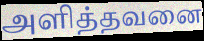
அளித்தவனை